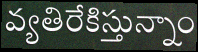
వ్యతిరేకిస్తున్నాం